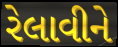
રેલાવીને